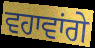
ਵਹਾਵਾਂਗੇ